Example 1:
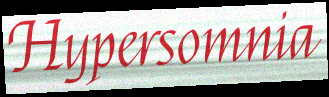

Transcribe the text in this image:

Hypersomnia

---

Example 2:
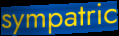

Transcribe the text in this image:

sympatric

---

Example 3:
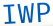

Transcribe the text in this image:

IWP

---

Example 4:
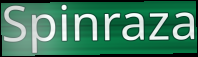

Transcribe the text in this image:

Spinraza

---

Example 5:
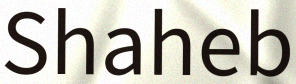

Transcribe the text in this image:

Shaheb